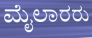
ಮೈಲಾರರು